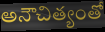
అనౌచిత్యంతో